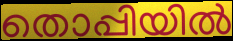
തൊപ്പിയിൽ